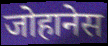
जोहानेस